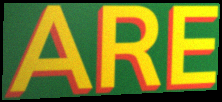
ARE